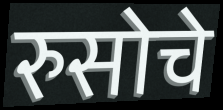
रुसोचे